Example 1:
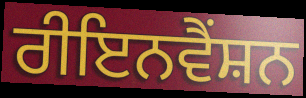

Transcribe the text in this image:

ਰੀਇਨਵੈਂਸ਼ਨ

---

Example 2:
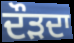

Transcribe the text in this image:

ਦੌੜਦਾ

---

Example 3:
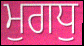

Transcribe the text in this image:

ਮੁਗਧੁ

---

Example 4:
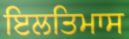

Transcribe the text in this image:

ਇਲਤਿਮਾਸ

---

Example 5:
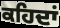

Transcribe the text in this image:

ਕਹਿਦਾਂ